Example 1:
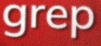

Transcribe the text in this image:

grep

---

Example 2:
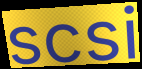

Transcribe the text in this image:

scsi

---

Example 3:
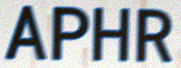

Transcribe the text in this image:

APHR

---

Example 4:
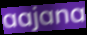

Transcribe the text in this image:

aajana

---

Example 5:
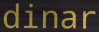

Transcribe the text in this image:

dinar